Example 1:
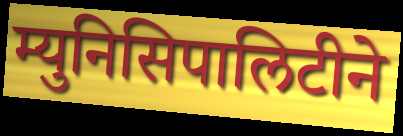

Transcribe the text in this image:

म्युनिसिपालिटीने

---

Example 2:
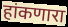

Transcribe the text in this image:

हांकणारा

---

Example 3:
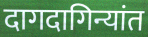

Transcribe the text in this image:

दागदागिन्यांत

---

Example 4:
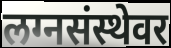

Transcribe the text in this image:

लग्नसंस्थेवर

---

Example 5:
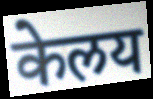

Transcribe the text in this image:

केलय